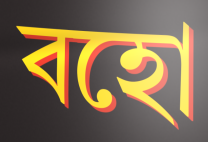
বহো